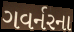
ગવર્નરના